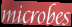
microbes